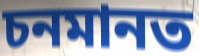
চনমানত